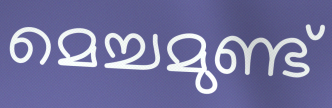
മെച്ചമുണ്ട്